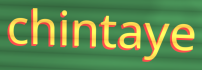
chintaye